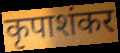
कृपाशंकर